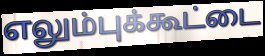
எலும்புக்கூட்டை